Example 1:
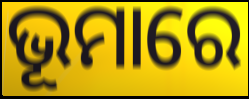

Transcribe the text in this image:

ଭୂମାରେ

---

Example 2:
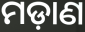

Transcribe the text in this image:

ମଡ଼ାଣ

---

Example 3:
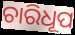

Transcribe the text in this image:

ଚାରିଧୂପ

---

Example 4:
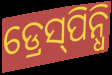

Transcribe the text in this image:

ଡ୍ରେସ୍‌ପିନ୍ଧି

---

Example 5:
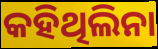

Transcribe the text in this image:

କହିଥିଲିନା